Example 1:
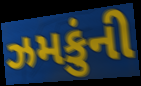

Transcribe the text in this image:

ઝમકુંની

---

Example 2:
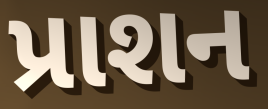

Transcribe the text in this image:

પ્રાશન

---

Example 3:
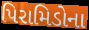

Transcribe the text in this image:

પિરામિડોના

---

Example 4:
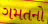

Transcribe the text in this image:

ગમતનો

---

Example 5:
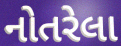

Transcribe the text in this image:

નોતરેલા